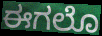
ಈಗಲೊ